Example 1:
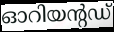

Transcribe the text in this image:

ഓറിയന്റഡ്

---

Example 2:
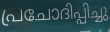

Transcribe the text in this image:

പ്രചോദിപ്പിച്ചു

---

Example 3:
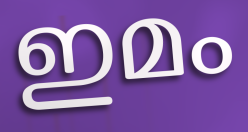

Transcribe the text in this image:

ഇമം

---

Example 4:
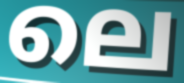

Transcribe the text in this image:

ലെ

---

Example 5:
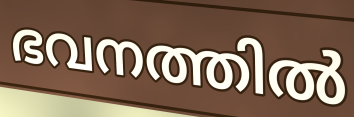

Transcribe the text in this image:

ഭവനത്തിൽ